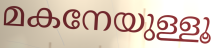
മകനേയുള്ളൂ